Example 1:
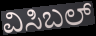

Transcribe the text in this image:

ವಿಸಿಬಲ್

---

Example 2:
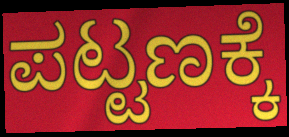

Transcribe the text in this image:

ಪಟ್ಟಣಕ್ಕೆ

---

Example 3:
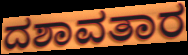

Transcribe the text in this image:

ದಶಾವತಾರ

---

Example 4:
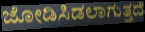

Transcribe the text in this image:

ಜೋಡಿಸಿಡಲಾಗುತ್ತದೆ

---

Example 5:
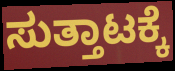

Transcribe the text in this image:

ಸುತ್ತಾಟಕ್ಕೆ